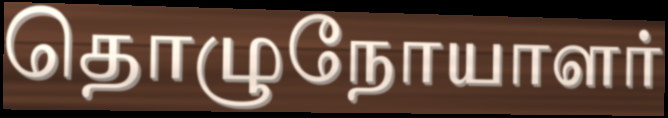
தொழுநோயாளர்